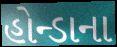
હોન્ડાના